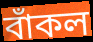
বাঁকল